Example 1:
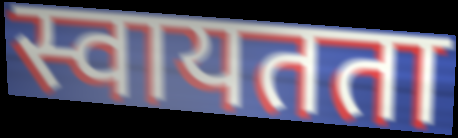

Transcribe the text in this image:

स्वायतता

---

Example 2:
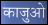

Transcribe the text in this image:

काजुओ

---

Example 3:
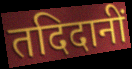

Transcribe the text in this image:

तदिदानीं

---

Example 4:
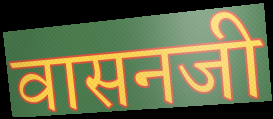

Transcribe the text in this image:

वासनजी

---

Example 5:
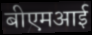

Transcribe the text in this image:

बीएमआई